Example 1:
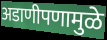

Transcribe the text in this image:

अडाणीपणामुळे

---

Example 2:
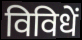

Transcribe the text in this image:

विविधें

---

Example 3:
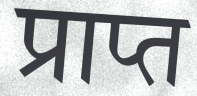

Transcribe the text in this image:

प्राप्‍त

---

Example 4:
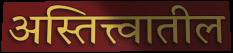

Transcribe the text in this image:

अस्तित्त्वातील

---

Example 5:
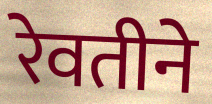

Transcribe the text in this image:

रेवतीने